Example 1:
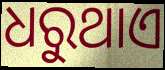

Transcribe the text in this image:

ଧରୁଥାଏ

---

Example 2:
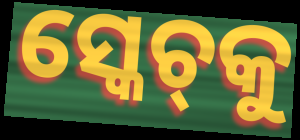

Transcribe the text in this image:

ସ୍କେଚ୍‌କୁ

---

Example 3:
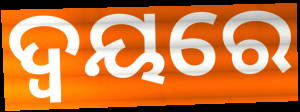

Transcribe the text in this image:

ଦ୍ୱୟରେ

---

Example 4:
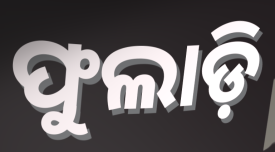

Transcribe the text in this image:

ଫୁଲାଡ଼ି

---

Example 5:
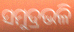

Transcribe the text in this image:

ସମୁଦ୍ରଭଳି